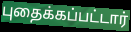
புதைக்கப்பட்டார்